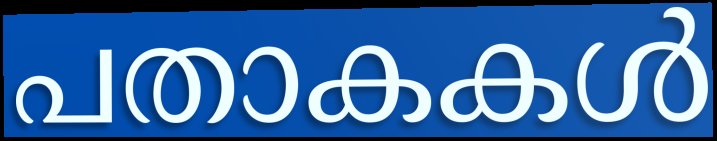
പതാകകൾ